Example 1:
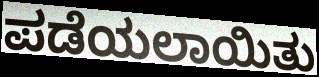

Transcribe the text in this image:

ಪಡೆಯಲಾಯಿತು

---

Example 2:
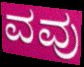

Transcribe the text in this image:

ವವು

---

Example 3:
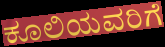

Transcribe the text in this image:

ಕೂಲಿಯವರಿಗೆ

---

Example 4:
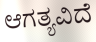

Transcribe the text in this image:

ಆಗತ್ಯವಿದೆ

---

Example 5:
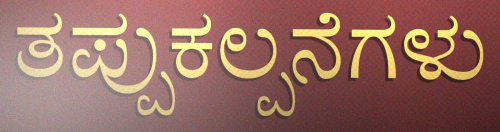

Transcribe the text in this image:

ತಪ್ಪುಕಲ್ಪನೆಗಳು